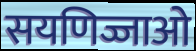
सयणिज्जाओ